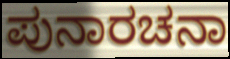
ಪುನಾರಚನಾ